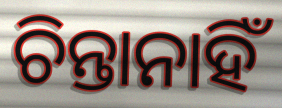
ଚିନ୍ତାନାହିଁ